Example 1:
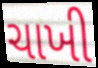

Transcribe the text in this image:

ચાખી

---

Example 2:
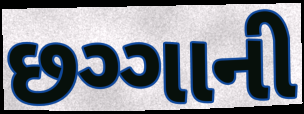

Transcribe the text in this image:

છગ્ગાની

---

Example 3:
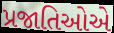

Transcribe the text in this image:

પ્રજાતિઓએ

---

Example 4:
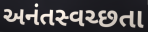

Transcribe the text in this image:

અનંતસ્વચ્છતા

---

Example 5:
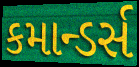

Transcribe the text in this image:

કમાન્ડર્સ